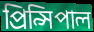
প্রিন্সিপাল